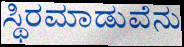
ಸ್ಥಿರಮಾಡುವೆನು